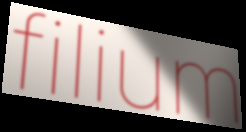
filium